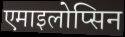
एमाइलोप्सिन